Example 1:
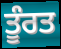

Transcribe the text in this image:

ਤੂੰਰਤ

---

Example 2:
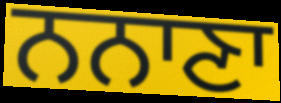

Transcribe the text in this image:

ਨਨਾਣਾ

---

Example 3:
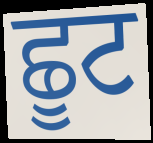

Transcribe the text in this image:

ਛੂਟ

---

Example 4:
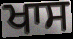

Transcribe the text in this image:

ਖਾਸ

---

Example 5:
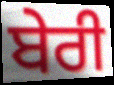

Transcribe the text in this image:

ਬੇਰੀ